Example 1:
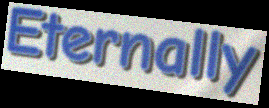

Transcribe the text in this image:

Eternally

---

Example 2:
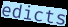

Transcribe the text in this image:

edicts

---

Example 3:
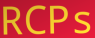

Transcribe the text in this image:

RCPs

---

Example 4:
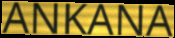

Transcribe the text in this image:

ANKANA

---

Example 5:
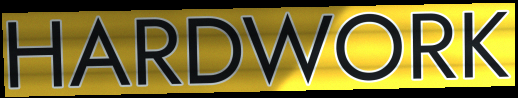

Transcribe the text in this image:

HARDWORK